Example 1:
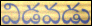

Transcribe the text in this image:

విడవడు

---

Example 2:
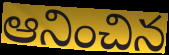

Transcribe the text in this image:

ఆనించిన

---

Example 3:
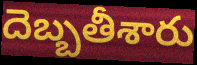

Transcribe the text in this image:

దెబ్బతీశారు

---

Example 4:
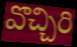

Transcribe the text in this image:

వొచ్చిరి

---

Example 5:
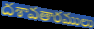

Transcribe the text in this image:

దశావతారములు